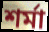
শর্মা